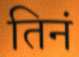
तिनं